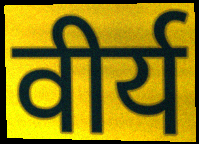
वीर्य